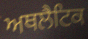
ਅਥਲੈਟਿਕ